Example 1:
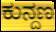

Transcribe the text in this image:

ಕುನ್ದಣ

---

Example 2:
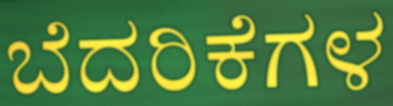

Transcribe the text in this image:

ಬೆದರಿಕೆಗಳ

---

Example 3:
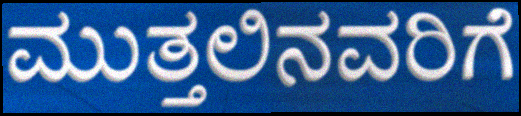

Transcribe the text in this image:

ಮುತ್ತಲಿನವರಿಗೆ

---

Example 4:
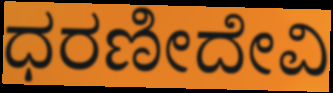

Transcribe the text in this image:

ಧರಣೀದೇವಿ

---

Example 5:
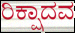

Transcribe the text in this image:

ರಿಕ್ಷಾದವ